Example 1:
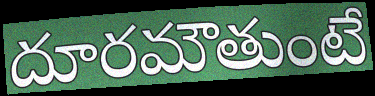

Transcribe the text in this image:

దూరమౌతుంటే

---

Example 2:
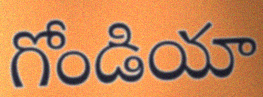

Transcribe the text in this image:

గోండియా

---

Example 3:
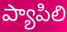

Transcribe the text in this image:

ప్యాపిలి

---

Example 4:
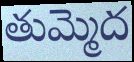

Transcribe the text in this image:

తుమ్మెద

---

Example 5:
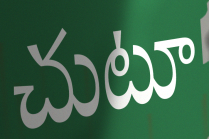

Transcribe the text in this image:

చుటూ